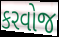
કરવોજ